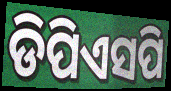
ଡିପିଏସପି